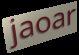
jaoar